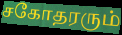
சகோதரரும்